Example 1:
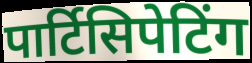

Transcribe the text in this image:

पार्टिसिपेटिंग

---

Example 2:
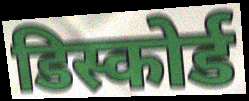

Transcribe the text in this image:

डिस्कोर्ड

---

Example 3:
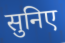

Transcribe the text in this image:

सुनिए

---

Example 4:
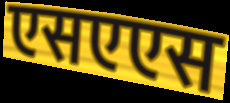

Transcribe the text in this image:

एसएएस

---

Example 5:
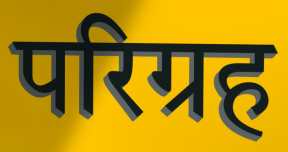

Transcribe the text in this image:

परिग्रह